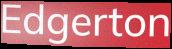
Edgerton